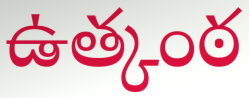
ఉత్కంఠ